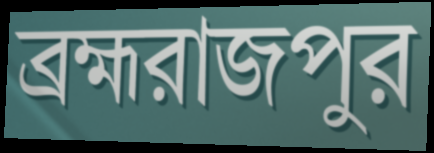
ব্রহ্মরাজপুর